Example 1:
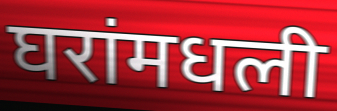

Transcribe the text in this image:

घरांमधली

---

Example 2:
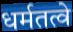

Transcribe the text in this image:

धर्मतत्वे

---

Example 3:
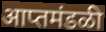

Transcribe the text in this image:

आप्तमंडळी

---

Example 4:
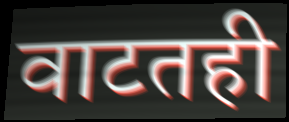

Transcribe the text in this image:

वाटतही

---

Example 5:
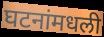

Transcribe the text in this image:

घटनांमधली